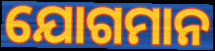
ଯୋଗମାନ